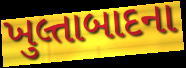
ખુલ્તાબાદના